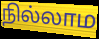
நில்லாம